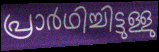
പ്രാർഥിച്ചിട്ടുള്ളു